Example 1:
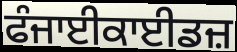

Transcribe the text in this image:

ਫੰਜਾਈਕਾਈਡਜ਼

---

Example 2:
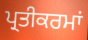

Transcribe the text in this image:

ਪ੍ਰਤੀਕਰਮਾਂ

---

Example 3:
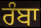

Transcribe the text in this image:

ਰੰਬਾ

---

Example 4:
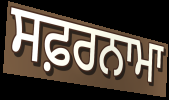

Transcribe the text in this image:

ਸਫ਼ਰਨਾਮਾ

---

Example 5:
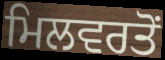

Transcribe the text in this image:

ਮਿਲਵਰਤੋਂ